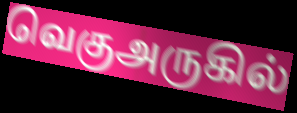
வெகுஅருகில்